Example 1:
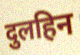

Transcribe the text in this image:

दुलहिन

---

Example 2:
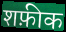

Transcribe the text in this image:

शफ़ीक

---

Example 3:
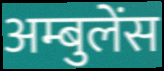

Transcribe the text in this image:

अम्बुलेंस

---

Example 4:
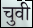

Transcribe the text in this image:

चुवी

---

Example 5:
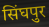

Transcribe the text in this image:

सिंघपुर